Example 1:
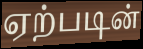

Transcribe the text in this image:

ஏற்படின்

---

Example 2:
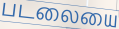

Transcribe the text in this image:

படலையை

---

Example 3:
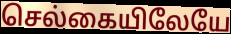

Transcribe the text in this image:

செல்கையிலேயே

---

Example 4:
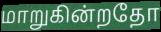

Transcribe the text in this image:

மாறுகின்றதோ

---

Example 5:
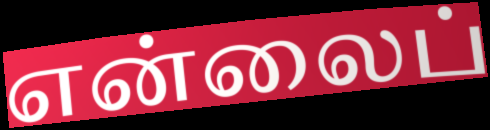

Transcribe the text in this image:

என்லைப்